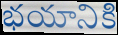
భయానికి